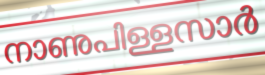
നാണുപിള്ളസാർ